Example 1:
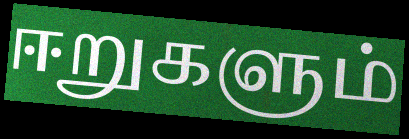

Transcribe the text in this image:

ஈறுகளும்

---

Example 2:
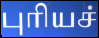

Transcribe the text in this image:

புரியச்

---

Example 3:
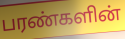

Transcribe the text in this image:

பரண்களின்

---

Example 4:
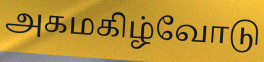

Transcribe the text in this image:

அகமகிழ்வோடு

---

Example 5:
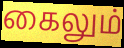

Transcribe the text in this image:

கைலும்